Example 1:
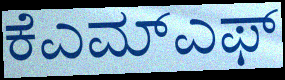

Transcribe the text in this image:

ಕೆಎಮ್ಎಫ್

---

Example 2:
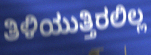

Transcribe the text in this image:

ತಿಳಿಯುತ್ತಿರಲಿಲ್ಲ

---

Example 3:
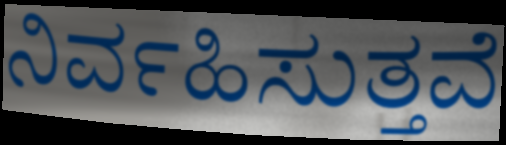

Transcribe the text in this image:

ನಿರ್ವಹಿಸುತ್ತವೆ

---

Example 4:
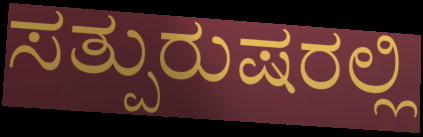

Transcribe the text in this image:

ಸತ್ಪುರುಷರಲ್ಲಿ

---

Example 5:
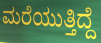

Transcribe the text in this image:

ಮರೆಯುತ್ತಿದ್ದೆ